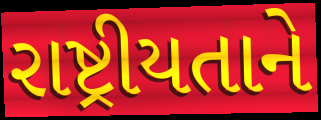
રાષ્ટ્રીયતાને